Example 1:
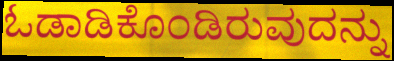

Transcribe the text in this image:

ಓಡಾಡಿಕೊಂಡಿರುವುದನ್ನು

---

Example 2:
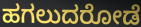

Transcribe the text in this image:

ಹಗಲುದರೋಡೆ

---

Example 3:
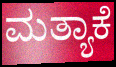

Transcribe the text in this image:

ಮತ್ಯಾಕೆ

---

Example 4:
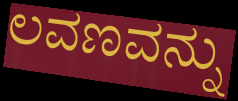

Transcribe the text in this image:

ಲವಣವನ್ನು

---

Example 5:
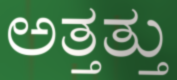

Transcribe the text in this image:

ಅತ್ತತ್ತು